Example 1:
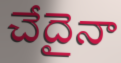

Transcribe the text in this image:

చేదైనా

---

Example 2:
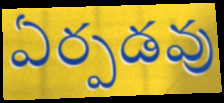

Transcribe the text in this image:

ఏర్పడవు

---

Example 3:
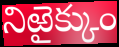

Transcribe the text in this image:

నిఱైక్కుం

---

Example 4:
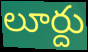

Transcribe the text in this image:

లూర్దు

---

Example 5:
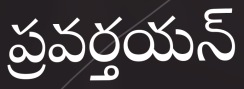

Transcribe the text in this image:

ప్రవర్తయన్